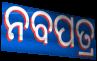
ନବପତ୍ର